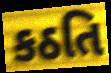
કઠતિ